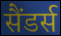
सैंडर्स